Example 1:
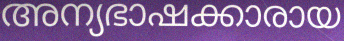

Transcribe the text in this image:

അന്യഭാഷക്കാരായ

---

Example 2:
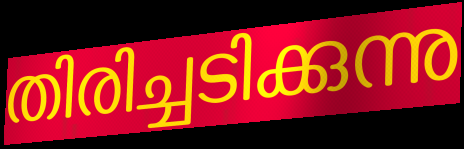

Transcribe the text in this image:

തിരിച്ചടിക്കുന്നു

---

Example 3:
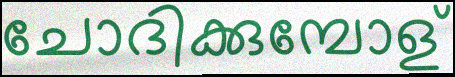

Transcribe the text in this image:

ചോദിക്കുമ്പോള്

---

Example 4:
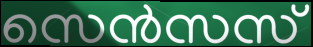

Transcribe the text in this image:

സെൻസസ്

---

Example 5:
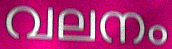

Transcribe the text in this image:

വലനം